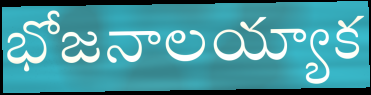
భోజనాలయ్యాక